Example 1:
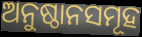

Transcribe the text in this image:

ଅନୁଷ୍ଠାନସମୂହ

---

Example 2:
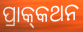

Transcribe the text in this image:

ପ୍ରାକ୍‍କଥନ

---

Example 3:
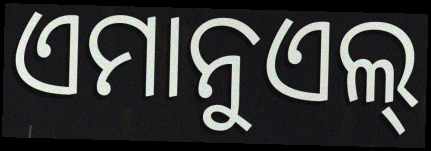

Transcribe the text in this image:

ଏମାନୁଏଲ୍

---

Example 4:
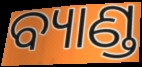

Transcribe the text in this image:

ବ୍ୟାଣ୍ଡ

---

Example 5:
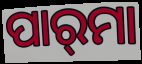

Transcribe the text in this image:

ପାର୍‌ମା